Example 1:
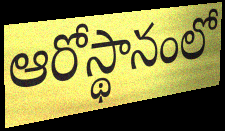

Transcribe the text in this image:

ఆరోస్థానంలో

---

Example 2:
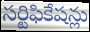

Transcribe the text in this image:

సర్టిఫికేషన్లు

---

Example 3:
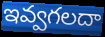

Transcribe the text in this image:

ఇవ్వగలదా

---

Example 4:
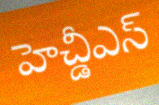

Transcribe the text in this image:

హెచ్డీఎస్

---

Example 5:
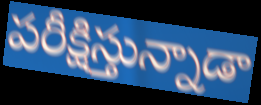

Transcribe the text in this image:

పరీక్షిస్తున్నాడా